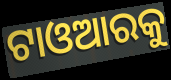
ଟାଓଆରକୁ